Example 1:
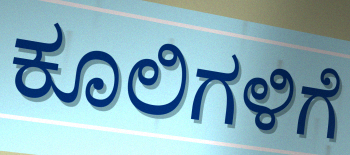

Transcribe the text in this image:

ಕೂಲಿಗಳಿಗೆ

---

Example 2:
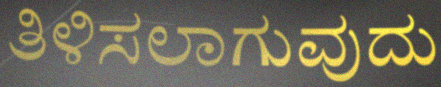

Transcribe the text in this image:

ತಿಳಿಸಲಾಗುವುದು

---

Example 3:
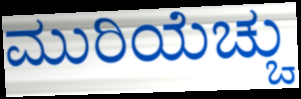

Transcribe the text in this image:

ಮುರಿಯೆಚ್ಚು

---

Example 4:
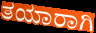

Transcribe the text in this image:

ತಯಾರಾಗಿ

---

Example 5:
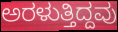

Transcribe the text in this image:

ಅರಳುತ್ತಿದ್ದವು